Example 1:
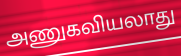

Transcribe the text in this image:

அணுகவியலாது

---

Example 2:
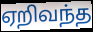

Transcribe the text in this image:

ஏறிவந்த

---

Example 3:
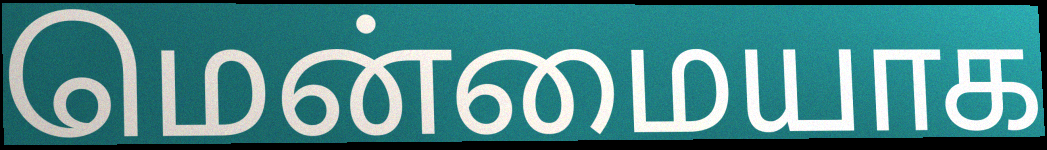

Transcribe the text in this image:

மென்மையாக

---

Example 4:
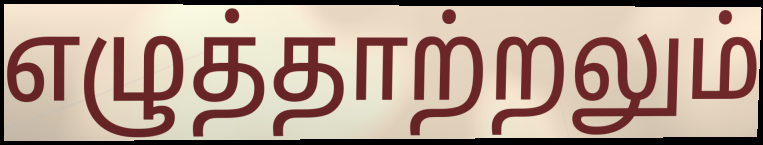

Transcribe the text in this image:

எழுத்தாற்றலும்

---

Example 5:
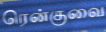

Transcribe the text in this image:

ரென்குவை